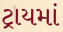
ટ્રાયમાં